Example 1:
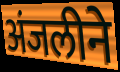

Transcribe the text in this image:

अंजलीने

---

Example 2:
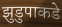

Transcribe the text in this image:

झुडुपाकडे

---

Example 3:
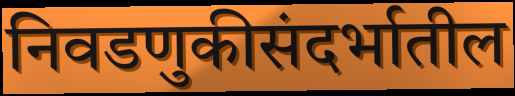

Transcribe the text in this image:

निवडणुकीसंदर्भातील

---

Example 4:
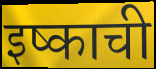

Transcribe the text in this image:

इष्काची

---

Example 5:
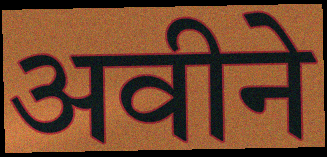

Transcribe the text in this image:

अवीने